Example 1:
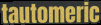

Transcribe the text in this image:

tautomeric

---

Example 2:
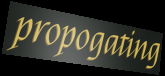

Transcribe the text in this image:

propogating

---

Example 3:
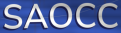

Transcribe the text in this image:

SAOCC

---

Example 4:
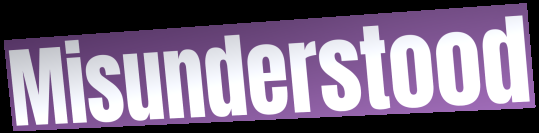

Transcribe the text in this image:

Misunderstood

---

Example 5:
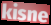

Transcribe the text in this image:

kisne